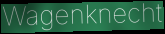
Wagenknecht